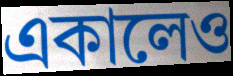
একালেও